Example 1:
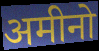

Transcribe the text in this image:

अमीनो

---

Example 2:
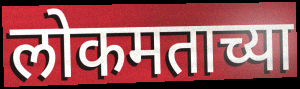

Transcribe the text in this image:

लोकमताच्या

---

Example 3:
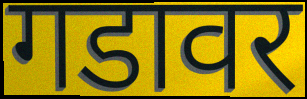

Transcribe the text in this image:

गडावर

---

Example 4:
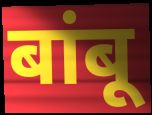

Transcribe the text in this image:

बांबू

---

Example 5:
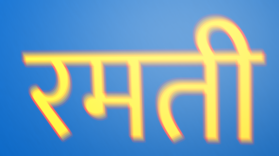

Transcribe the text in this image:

रमती